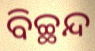
ବିଚ୍ଛନ୍ଦ